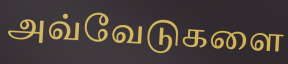
அவ்வேடுகளை